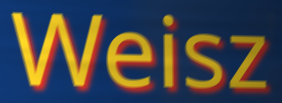
Weisz